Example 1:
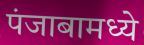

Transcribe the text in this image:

पंजाबामध्ये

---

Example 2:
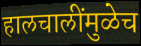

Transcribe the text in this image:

हालचालींमुळेच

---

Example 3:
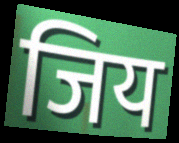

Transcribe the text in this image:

जिय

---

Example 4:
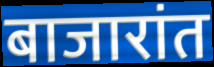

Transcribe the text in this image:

बाजारांत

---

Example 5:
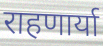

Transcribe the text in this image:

राहणार्या